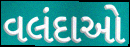
વલંદાઓ